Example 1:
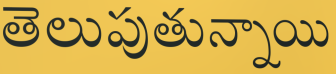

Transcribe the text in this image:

తెలుపుతున్నాయి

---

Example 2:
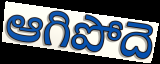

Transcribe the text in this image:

ఆగిపోదె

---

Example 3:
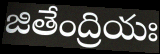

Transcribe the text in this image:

జితేంద్రియః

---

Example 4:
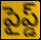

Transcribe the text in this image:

పైప్డ్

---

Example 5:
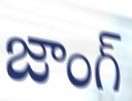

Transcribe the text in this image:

జాంగ్